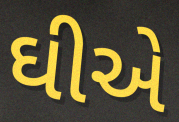
ઘીએ